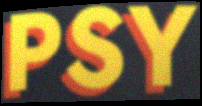
PSY